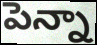
పెన్నా